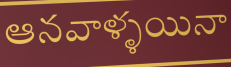
ఆనవాళ్ళయినా